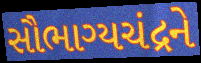
સૌભાગ્યચંદ્રને